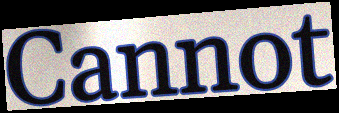
Cannot